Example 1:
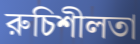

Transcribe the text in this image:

রুচিশীলতা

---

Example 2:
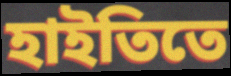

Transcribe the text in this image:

হাইতিতে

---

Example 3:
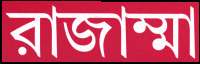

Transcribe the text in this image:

রাজাম্মা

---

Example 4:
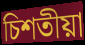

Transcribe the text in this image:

চিশতীয়া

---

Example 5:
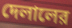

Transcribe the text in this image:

দেলালের